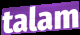
talam